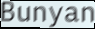
Bunyan